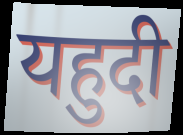
यहुदी